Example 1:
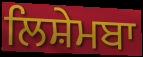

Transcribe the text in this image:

ਲਿਸ਼ੇਮਬਾ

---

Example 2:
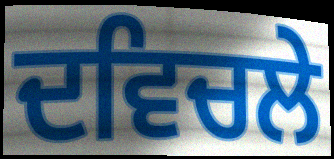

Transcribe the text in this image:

ਦਵਿਚਲੇ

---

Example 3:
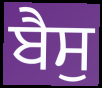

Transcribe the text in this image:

ਬੈਸੁ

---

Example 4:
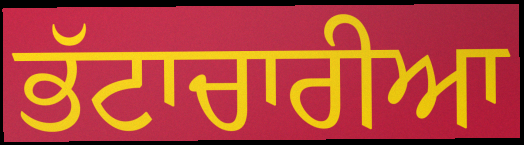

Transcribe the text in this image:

ਭੱਟਾਚਾਰੀਆ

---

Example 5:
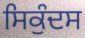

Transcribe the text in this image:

ਸਿਕੁੰਦਸ